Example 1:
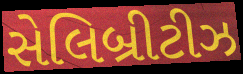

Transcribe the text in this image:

સેલિબ્રીટીઝ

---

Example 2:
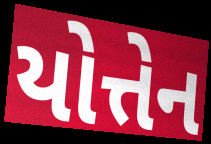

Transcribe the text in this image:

યોત્તેન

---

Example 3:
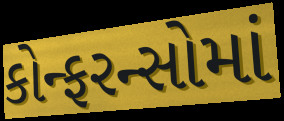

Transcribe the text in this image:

કોન્ફરન્સોમાં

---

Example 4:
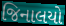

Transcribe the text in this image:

જિનાલયો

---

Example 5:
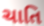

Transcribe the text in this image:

ચાતિ